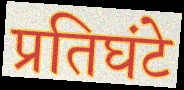
प्रतिघंटे